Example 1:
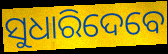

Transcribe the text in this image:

ସୁଧାରିଦେବେ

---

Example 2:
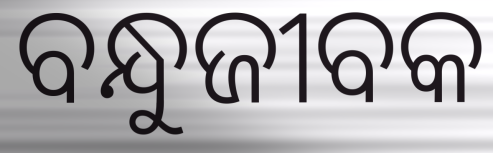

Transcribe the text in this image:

ବନ୍ଧୁଜୀବକ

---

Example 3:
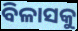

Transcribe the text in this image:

ବିଳାସକୁ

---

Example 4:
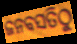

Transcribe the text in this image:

ଜନବସତିଠୁ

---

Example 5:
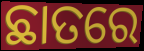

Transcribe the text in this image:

ଛାତରେ